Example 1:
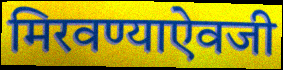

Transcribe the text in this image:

मिरवण्याऐवजी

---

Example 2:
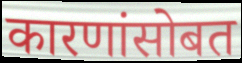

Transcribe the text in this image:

कारणांसोबत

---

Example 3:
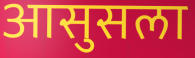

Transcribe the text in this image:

आसुसला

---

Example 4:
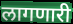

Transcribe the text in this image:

लागणारी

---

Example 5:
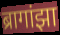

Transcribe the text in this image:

ब्रागांझा